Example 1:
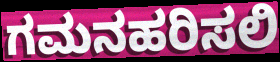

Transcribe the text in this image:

ಗಮನಹರಿಸಲಿ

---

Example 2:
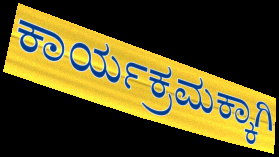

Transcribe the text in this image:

ಕಾರ್ಯಕ್ರಮಕ್ಕಾಗಿ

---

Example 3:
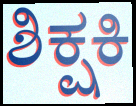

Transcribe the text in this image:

ಶಿಕ್ಷಕಿ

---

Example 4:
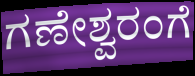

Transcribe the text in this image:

ಗಣೇಶ್ವರಂಗೆ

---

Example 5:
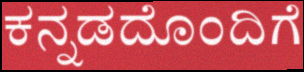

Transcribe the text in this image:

ಕನ್ನಡದೊಂದಿಗೆ